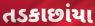
તડકાછાંયા